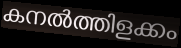
കനൽത്തിളക്കം